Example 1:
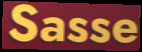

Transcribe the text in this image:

Sasse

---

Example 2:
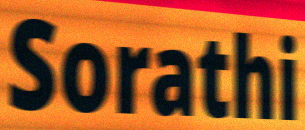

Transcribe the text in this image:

Sorathi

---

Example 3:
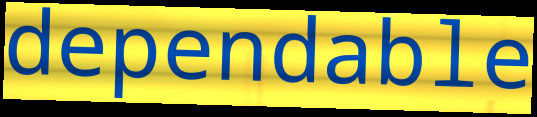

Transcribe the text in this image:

dependable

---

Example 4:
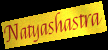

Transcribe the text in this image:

Natyashastra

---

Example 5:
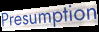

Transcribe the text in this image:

Presumption